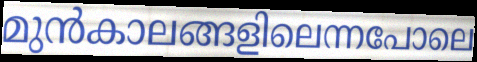
മുൻകാലങ്ങളിലെന്നപോലെ